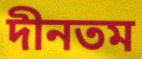
দীনতম